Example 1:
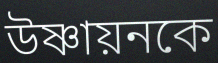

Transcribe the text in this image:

উষ্ণায়নকে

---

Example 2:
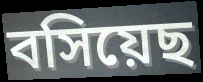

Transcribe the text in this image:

বসিয়েছ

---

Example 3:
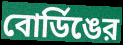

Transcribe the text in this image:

বোর্ডিঙের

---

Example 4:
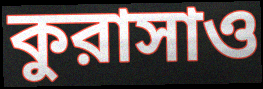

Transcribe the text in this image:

কুরাসাও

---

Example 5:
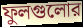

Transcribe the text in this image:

ফুলগুলোর